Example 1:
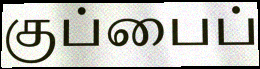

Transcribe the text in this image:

குப்பைப்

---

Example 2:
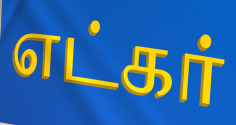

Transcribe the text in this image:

எட்கர்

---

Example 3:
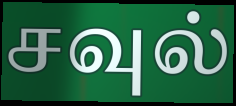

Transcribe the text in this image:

சவுல்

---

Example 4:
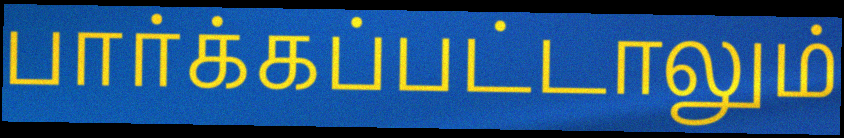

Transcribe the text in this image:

பார்க்கப்பட்டாலும்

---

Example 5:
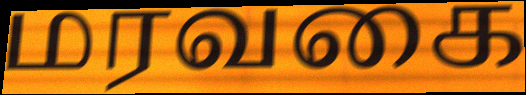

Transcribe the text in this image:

மரவகை